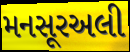
મનસૂરઅલી